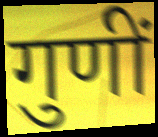
गुणीं